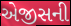
એજીસની